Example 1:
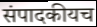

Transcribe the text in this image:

संपादकीयच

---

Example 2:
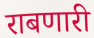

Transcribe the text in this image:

राबणारी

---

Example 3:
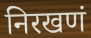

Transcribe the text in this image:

निरखणं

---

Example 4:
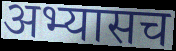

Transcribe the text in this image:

अभ्यासच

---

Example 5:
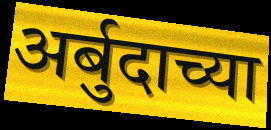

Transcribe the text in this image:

अर्बुदाच्या